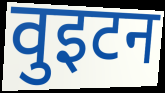
वुइटन